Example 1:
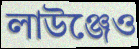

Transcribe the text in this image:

লাউঞ্জেও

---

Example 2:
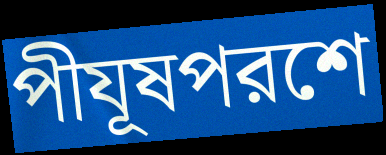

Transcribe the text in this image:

পীযূষপরশে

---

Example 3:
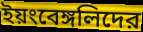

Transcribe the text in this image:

ইয়ংবেঙ্গলিদের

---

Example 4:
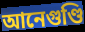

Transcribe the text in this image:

আনেগুণ্ডি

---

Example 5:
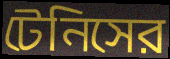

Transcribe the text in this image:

টেনিসের